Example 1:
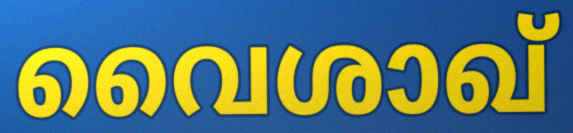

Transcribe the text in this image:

വൈശാഖ്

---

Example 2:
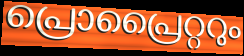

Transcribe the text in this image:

പ്രൊപ്രൈറ്ററും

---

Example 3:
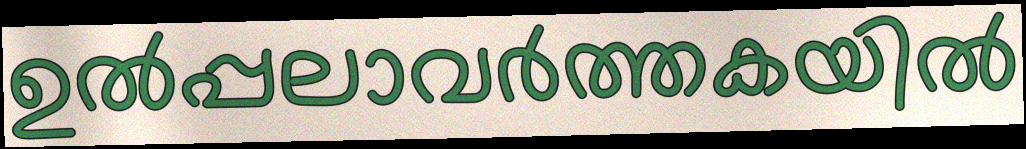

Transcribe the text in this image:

ഉൽപ്പലാവർത്തകയിൽ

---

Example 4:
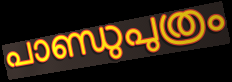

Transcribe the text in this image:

പാണ്ഡുപുത്രം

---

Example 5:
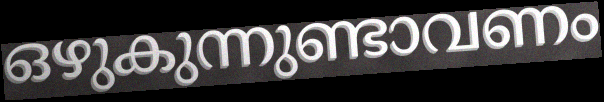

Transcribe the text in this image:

ഒഴുകുന്നുണ്ടാവണം